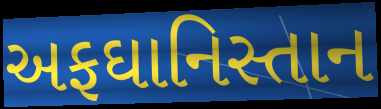
અફઘાનિસ્તાન